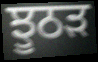
ਝੂਠੜ